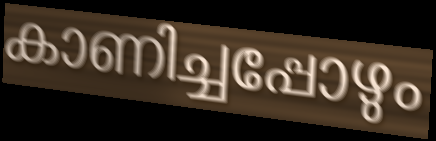
കാണിച്ചപ്പോഴും